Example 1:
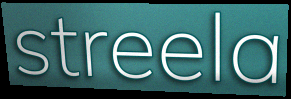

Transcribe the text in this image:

streela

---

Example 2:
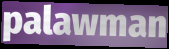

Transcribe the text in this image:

palawman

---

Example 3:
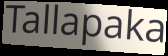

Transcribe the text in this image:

Tallapaka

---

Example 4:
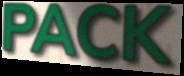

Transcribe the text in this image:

PACK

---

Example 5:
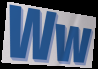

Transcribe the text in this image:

Ww